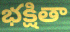
భక్షితా